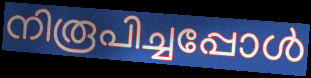
നിരൂപിച്ചപ്പോൾ